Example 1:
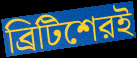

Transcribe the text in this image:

ব্রিটিশেরই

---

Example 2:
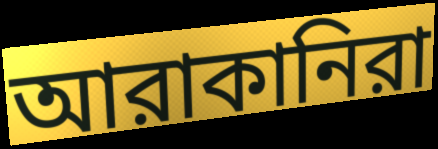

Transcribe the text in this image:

আরাকানিরা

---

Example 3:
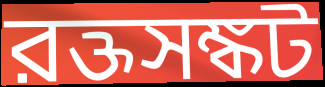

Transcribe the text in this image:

রক্তসঙ্কট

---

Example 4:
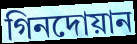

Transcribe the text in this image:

গিনদোয়ান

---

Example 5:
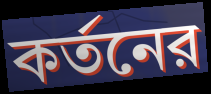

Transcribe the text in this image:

কর্তনের